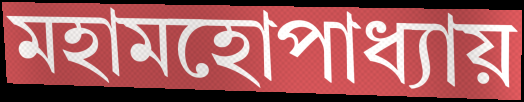
মহামহোপাধ্যায়